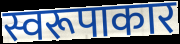
स्वरूपाकार